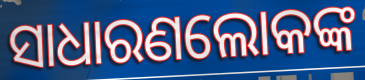
ସାଧାରଣଲୋକଙ୍କ